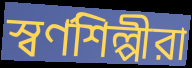
স্বর্ণশিল্পীরা